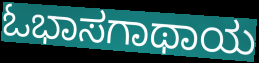
ಓಭಾಸಗಾಥಾಯ